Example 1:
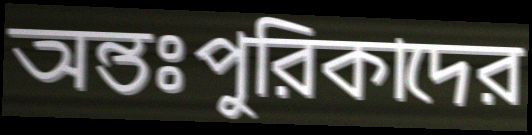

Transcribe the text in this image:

অন্তঃপুরিকাদের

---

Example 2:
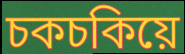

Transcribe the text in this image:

চকচকিয়ে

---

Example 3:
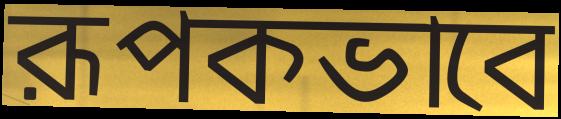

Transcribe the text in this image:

রূপকভাবে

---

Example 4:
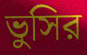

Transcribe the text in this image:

ভুসির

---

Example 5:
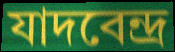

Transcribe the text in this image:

যাদবেন্দ্র